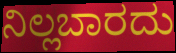
ನಿಲ್ಲಬಾರದು